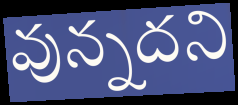
వున్నదని